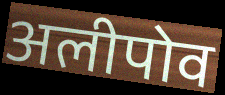
अलीपोव